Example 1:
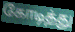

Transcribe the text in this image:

கோடித்து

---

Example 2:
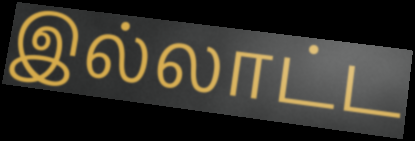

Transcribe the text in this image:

இல்லாட்ட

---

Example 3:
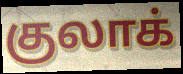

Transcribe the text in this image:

குலாக்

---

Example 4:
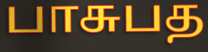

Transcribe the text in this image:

பாசுபத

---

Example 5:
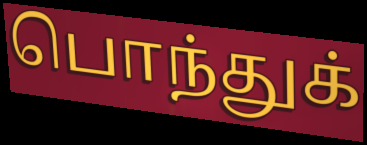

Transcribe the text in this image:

பொந்துக்